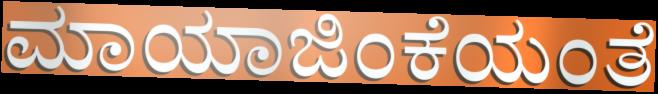
ಮಾಯಾಜಿಂಕೆಯಂತೆ